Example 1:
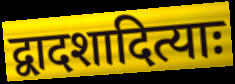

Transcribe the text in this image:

द्वादशादित्याः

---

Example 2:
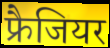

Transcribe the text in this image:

फ्रैजियर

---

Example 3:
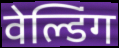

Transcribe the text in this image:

वेल्डिंग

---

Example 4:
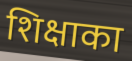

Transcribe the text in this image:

शिक्षाका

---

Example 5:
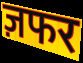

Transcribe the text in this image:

ज़फर